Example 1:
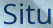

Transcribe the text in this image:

Situ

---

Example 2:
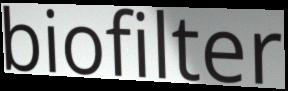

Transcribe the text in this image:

biofilter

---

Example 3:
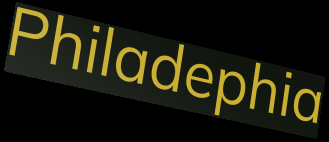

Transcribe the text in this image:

Philadephia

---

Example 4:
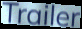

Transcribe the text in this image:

Trailer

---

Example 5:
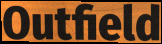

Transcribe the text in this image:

Outfield